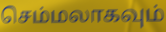
செம்மலாகவும்